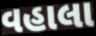
વહાલા